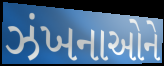
ઝંખનાઓને